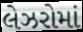
લેઝરોમાં